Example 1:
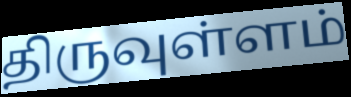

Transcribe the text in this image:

திருவுள்ளம்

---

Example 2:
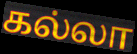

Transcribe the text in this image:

கல்லா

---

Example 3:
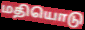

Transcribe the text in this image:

மதியொடு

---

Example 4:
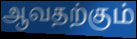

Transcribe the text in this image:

ஆவதற்கும்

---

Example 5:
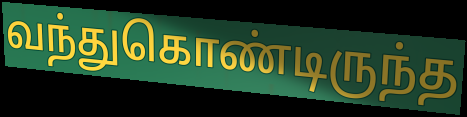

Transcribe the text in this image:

வந்துகொண்டிருந்த